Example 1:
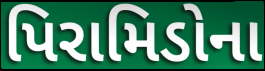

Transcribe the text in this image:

પિરામિડોના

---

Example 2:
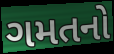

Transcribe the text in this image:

ગમતનો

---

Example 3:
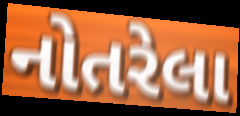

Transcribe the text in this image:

નોતરેલા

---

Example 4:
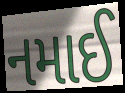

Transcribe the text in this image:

નમાઈ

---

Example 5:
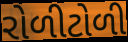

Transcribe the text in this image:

રોળીટોળી